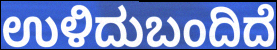
ಉಳಿದುಬಂದಿದೆ